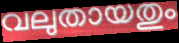
വലുതായതും